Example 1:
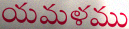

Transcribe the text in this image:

యమళము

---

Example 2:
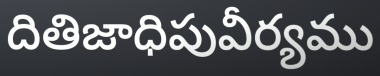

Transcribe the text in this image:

దితిజాధిపువీర్యము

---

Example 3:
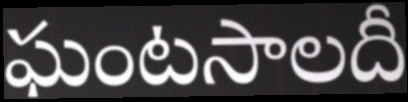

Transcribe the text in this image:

ఘంటసాలదీ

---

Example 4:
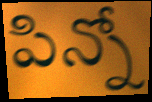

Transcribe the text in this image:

పిన్నో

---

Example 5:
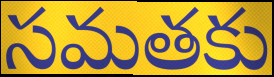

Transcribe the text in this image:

సమతకు